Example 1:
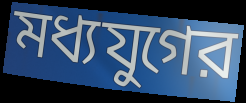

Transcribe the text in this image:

মধ্যযুগের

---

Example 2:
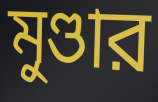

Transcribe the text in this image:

মুণ্ডার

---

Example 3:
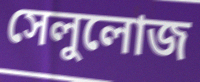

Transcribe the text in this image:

সেলুলোজ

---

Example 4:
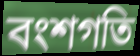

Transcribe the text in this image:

বংশগতি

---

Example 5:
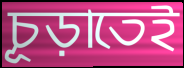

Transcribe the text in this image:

চূড়াতেই